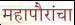
महापौरांचा